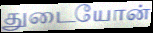
துடையோன்